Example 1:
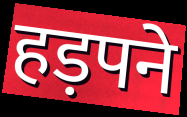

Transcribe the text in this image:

हड़पने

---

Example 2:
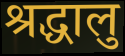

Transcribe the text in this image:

श्रद्धालु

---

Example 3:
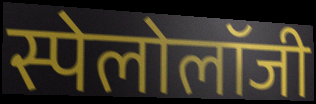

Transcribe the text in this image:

स्पेलोलॉजी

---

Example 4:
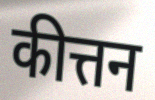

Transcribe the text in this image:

कीत्तन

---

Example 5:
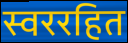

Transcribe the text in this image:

स्वररहित